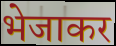
भेजाकर